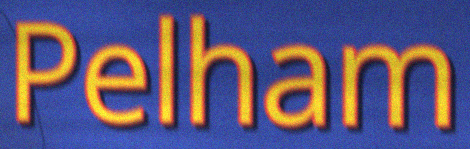
Pelham